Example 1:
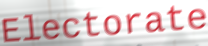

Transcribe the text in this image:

Electorate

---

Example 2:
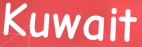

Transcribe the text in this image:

Kuwait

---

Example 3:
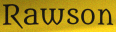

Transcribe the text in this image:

Rawson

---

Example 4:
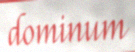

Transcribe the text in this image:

dominum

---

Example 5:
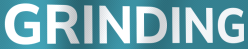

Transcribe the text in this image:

GRINDING